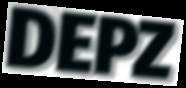
DEPZ